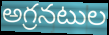
అగ్రనటుల